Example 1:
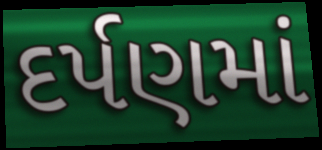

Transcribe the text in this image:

દર્પણમાં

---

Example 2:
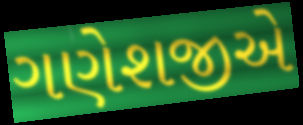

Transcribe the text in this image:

ગણેશજીએ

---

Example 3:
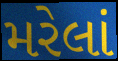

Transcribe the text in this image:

મરેલાં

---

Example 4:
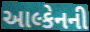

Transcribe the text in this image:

આલ્કેનની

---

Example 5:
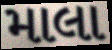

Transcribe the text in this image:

માલા